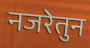
नजरेतुन